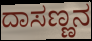
ದಾಸಣ್ಣನ